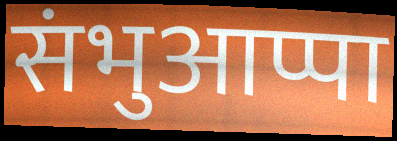
संभुआप्पा